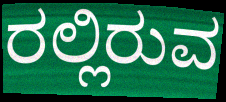
ರಲ್ಲಿರುವ